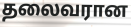
தலைவரான